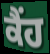
ਕੈਂਹ